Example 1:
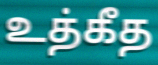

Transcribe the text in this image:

உத்கீத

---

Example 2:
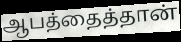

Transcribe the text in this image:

ஆபத்தைத்தான்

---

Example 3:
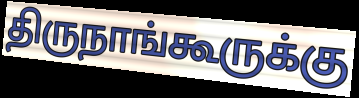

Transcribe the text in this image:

திருநாங்கூருக்கு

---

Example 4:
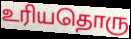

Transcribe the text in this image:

உரியதொரு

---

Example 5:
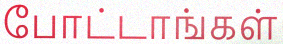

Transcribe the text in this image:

போட்டாங்கள்